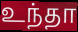
உந்தா